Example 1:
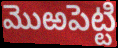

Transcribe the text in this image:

మొఱపెట్టి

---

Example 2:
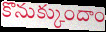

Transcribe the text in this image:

కొనుక్కుందాం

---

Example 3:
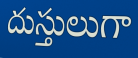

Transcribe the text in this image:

దుస్తులుగా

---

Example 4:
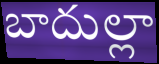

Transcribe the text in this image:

బాదుల్లా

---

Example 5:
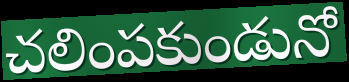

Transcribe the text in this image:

చలింపకుండునో